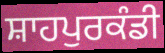
ਸ਼ਾਹਪੁਰਕੰਡੀ